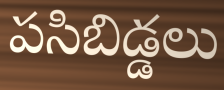
పసిబిడ్డలు